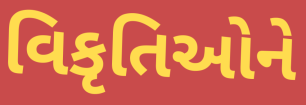
વિકૃતિઓને